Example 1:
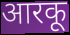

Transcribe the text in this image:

आरकू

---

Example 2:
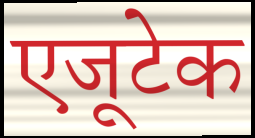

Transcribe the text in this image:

एजूटेक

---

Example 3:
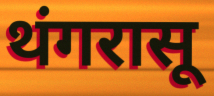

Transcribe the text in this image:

थंगरासू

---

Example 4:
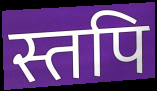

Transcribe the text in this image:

स्‍तपि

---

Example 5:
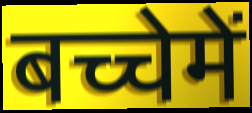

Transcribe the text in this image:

बच्चेमें